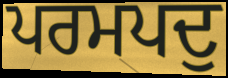
ਪਰਮਪਦੁ